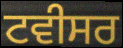
ਟਵੀਸਰ